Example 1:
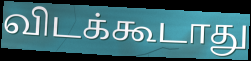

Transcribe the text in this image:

விடக்கூடாது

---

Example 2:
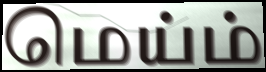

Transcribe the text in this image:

மெய்ம்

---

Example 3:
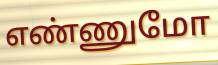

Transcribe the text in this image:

எண்ணுமோ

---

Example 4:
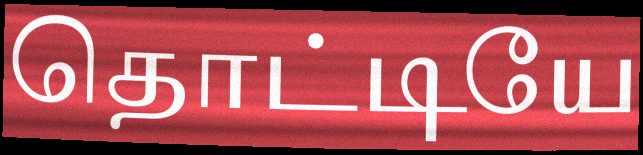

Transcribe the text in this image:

தொட்டியே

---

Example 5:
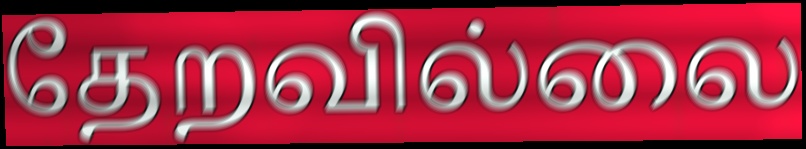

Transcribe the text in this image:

தேறவில்லை